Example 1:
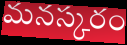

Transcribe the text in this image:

మనస్కరం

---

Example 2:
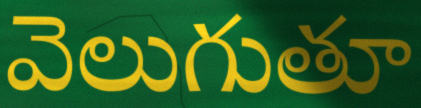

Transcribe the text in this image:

వెలుగుతూ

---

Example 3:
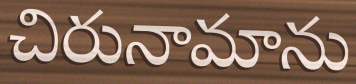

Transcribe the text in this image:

చిరునామాను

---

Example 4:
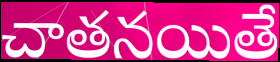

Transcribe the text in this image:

చాతనయితే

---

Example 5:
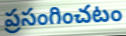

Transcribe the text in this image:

ప్రసంగించటం